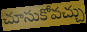
చూసుకోవచ్చు